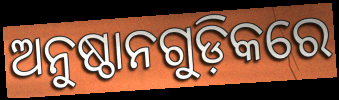
ଅନୁଷ୍ଠାନଗୁଡ଼ିକରେ